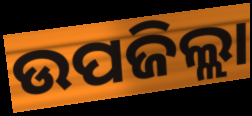
ଉପଜିଲ୍ଲା